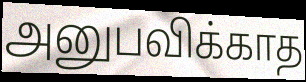
அனுபவிக்காத